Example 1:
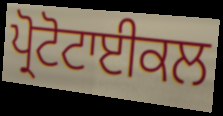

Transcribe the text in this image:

ਪ੍ਰੋਟੋਟਾਈਕਲ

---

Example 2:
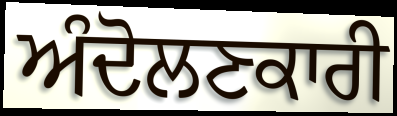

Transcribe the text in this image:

ਅੰਦੋਲਣਕਾਰੀ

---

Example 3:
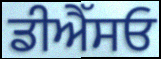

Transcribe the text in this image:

ਡੀਐੱਸਓ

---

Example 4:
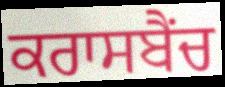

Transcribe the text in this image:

ਕਰਾਸਬੈਂਚ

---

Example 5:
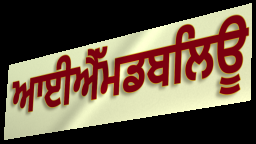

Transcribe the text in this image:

ਆਈਐੱਮਡਬਲਿਊ